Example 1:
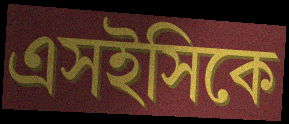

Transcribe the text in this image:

এসইসিকে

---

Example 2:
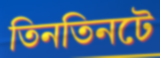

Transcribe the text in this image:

তিনতিনটে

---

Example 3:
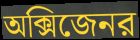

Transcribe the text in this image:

অক্সিজেনর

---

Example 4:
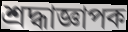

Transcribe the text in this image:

শ্রদ্ধাজ্ঞাপক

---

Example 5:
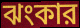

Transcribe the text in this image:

ঝংকার